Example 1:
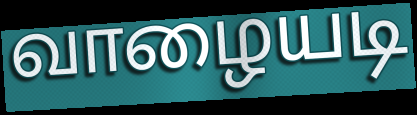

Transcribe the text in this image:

வாழையடி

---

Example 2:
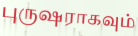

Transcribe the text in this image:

புருஷராகவும்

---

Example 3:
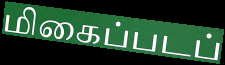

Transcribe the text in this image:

மிகைப்படப்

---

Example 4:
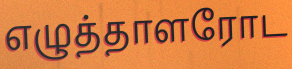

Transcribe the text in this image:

எழுத்தாளரோட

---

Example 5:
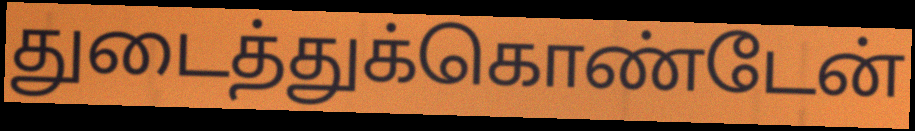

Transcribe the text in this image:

துடைத்துக்கொண்டேன்